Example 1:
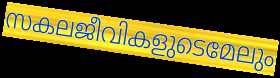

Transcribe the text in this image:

സകലജീവികളുടെമേലും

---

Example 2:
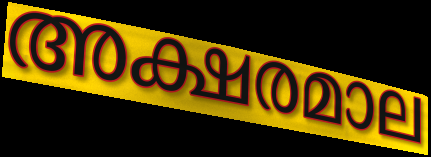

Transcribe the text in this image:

അക്ഷരമാല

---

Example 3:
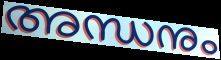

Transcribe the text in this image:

അന്ധനും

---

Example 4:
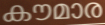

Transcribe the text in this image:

കൗമാര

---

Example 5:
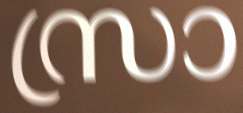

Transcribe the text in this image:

സ്രാ